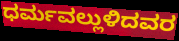
ಧರ್ಮವಲ್ಲುಳಿದವರ